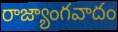
రాజ్యాంగవాదం